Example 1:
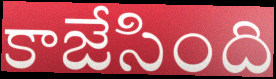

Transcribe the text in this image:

కాజేసింది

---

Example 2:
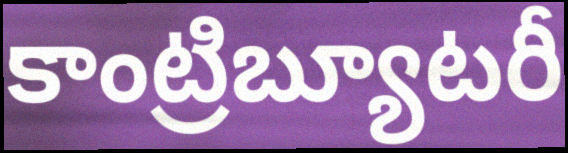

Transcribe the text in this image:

కాంట్రిబ్యూటరీ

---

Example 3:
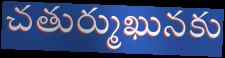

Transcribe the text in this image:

చతుర్ముఖునకు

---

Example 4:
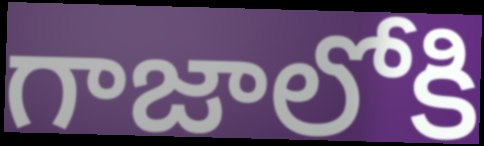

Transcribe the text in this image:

గాజాలోకి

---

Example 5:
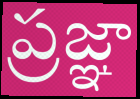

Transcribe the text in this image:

ప్రజ్ఞా